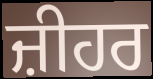
ਜ਼ੀਹਰ